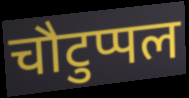
चौटुप्पल